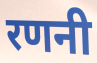
रणनी